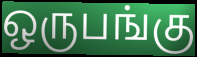
ஒருபங்கு